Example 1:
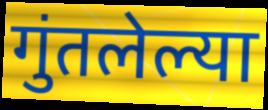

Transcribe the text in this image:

गुंतलेल्या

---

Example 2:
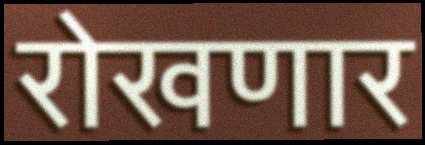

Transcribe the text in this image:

रोखणार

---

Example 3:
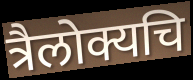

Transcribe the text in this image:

त्रैलोक्यचि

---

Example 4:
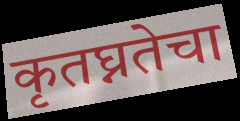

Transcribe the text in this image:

कृतघ्नतेचा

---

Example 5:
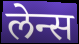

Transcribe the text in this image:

लेन्स